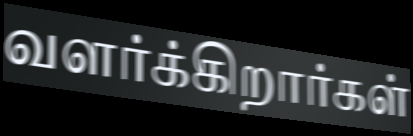
வளர்க்கிறார்கள்